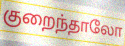
குறைந்தாலோ